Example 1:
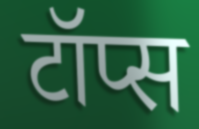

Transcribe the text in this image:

टॉप्स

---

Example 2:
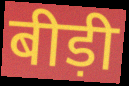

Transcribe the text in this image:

बीड़ी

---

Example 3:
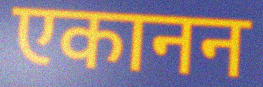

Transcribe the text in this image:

एकानन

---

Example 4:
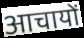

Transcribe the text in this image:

आचायों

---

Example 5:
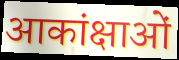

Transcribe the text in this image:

आकांक्षाओं